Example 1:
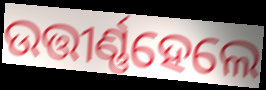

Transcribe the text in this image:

ଉତ୍ତୀର୍ଣ୍ଣହେଲେ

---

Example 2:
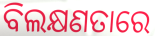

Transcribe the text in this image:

ବିଲକ୍ଷଣତାରେ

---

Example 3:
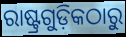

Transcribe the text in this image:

ରାଷ୍ଟ୍ରଗୁଡ଼ିକଠାରୁ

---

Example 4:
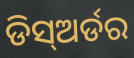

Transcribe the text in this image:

ଡିସ୍ଅର୍ଡର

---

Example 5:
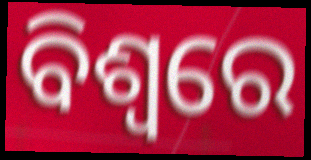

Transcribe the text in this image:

ବିଶ୍ଵରେ